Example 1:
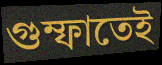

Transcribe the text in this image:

গুম্ফাতেই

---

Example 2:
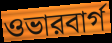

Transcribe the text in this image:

ওভারবার্গ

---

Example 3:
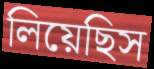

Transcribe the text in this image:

লিয়েছিস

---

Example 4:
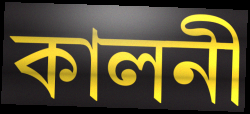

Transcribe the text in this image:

কালনী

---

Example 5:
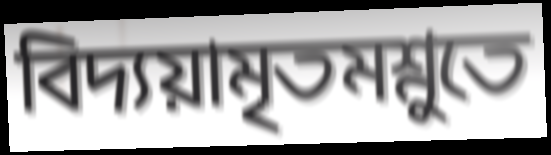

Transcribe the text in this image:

বিদ্যয়ামৃতমশ্নুতে